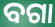
ବଗା